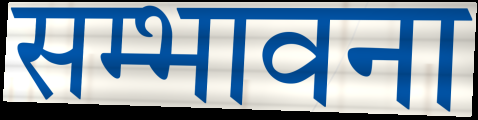
सम्भावना